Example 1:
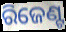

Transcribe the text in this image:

ରିଜେଣ୍ଟ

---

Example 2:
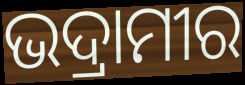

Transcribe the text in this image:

ଭଦ୍ରାମୀର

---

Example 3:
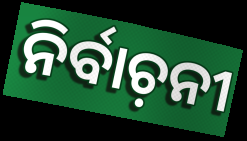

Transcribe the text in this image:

ନିର୍ବାଚ଼ନୀ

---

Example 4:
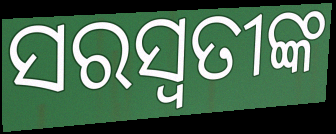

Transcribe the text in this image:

ସରସ୍ବତୀଙ୍କ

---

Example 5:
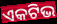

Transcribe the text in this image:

ଏକଟିଭ